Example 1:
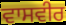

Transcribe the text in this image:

ਵਾਸਵੀਰ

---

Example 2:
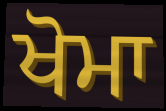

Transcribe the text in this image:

ਖੋਮਾ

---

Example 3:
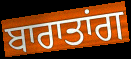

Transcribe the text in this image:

ਬਾਰਾਤਾਂਗ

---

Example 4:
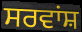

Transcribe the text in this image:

ਸਰਵਾਂਸ਼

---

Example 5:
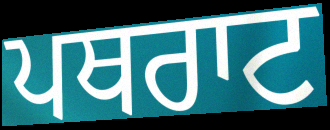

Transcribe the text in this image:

ਪਥਰਾਟ